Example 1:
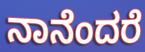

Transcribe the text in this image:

ನಾನೆಂದರೆ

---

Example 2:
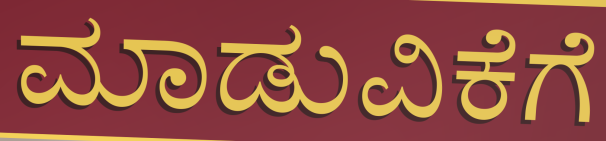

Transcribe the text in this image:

ಮಾಡುವಿಕೆಗೆ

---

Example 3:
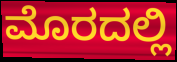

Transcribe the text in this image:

ಮೊರದಲ್ಲಿ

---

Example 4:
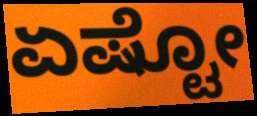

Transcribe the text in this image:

ಏಷ್ಟೋ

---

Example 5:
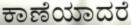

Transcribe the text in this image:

ಕಾಣೆಯಾದರೆ